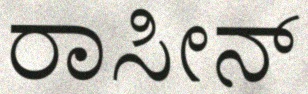
ರಾಸೀನ್